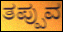
ತಪ್ಪುವ